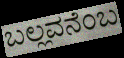
ಬಲ್ಲವನೆಂಬ